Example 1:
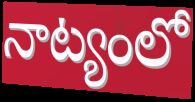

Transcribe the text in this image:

నాట్యంలో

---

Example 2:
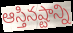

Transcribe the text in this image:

ఆస్తినష్టాన్ని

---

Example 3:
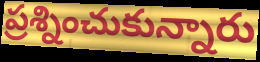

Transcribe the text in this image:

ప్రశ్నించుకున్నారు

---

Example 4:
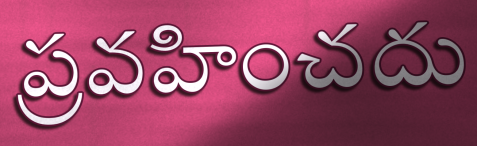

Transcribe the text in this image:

ప్రవహించదు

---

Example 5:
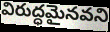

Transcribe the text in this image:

విరుద్ధమైనవని